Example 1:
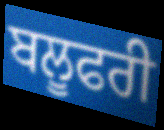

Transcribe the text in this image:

ਬਲੂਫਰੀ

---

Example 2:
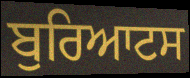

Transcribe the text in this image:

ਬੁਰਿਆਟਸ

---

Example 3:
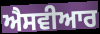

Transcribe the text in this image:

ਐਸਵੀਆਰ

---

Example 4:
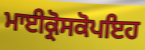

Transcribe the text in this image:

ਮਾਈਕ੍ਰੋਸਕੋਪਇਹ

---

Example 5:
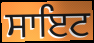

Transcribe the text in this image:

ਸਾਇਟ